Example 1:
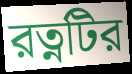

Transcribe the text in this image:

রত্নটির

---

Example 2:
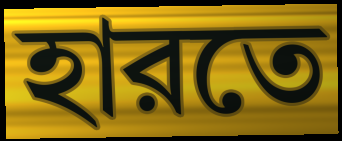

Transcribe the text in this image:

হারতে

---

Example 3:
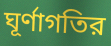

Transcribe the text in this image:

ঘূর্ণাগতির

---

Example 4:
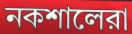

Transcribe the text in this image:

নকশালেরা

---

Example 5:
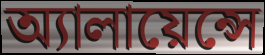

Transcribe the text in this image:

অ্যালায়েন্সে